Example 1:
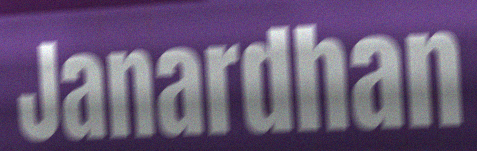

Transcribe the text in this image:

Janardhan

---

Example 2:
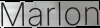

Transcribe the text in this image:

Marlon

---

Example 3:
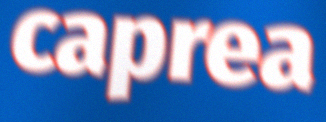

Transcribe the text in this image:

caprea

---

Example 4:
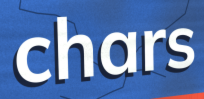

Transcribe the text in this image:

chars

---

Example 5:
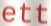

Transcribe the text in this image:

ett